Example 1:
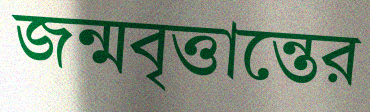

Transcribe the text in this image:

জন্মবৃত্তান্তের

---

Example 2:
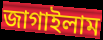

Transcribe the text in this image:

জাগাইলাম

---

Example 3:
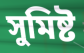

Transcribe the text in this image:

সুমিষ্ট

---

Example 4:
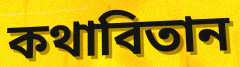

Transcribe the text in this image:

কথাবিতান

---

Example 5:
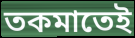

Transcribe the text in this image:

তকমাতেই